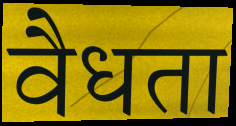
वैधता